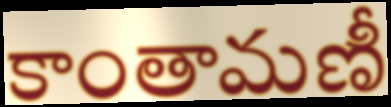
కాంతామణీ